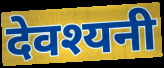
देवश्यनी